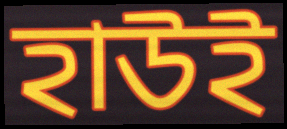
হাউই